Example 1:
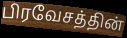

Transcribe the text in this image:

பிரவேசத்தின்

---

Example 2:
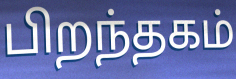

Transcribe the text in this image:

பிறந்தகம்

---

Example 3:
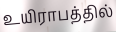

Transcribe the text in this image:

உயிராபத்தில்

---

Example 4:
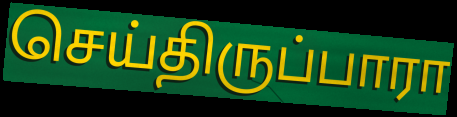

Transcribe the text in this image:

செய்திருப்பாரா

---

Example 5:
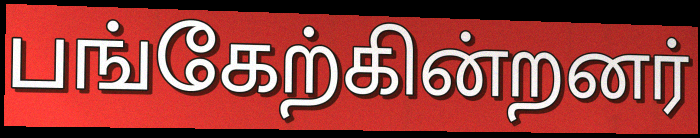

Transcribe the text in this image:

பங்கேற்கின்றனர்